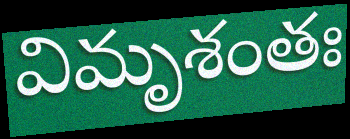
విమృశంతః